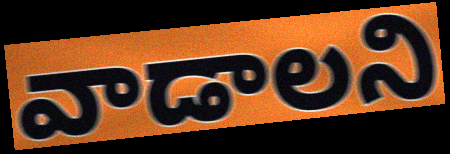
వాడాలని